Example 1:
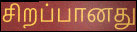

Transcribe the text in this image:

சிறப்பானது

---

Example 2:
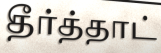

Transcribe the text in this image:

தீர்த்தாட்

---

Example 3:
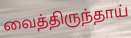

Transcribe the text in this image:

வைத்திருந்தாய்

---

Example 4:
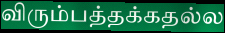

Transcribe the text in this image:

விரும்பத்தக்கதல்ல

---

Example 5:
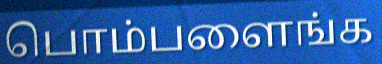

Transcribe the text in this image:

பொம்பளைங்க